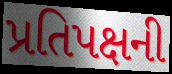
પ્રતિપક્ષની